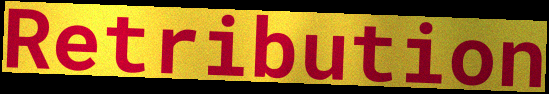
Retribution